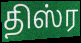
திஸ்ர